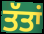
ਤੱਤਾਂ